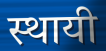
स्‍थायी